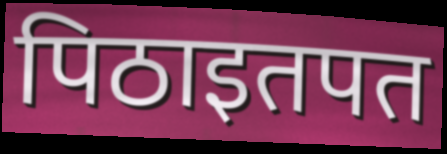
पिठाइतपत